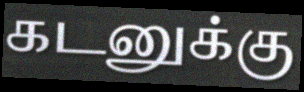
கடனுக்கு